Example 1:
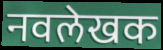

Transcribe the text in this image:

नवलेखक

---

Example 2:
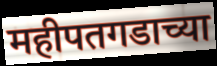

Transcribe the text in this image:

महीपतगडाच्या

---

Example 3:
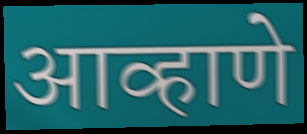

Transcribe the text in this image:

आव्हाणे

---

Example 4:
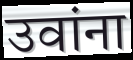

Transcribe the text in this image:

उवांना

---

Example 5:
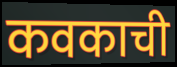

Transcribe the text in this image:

कवकाची